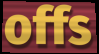
offs